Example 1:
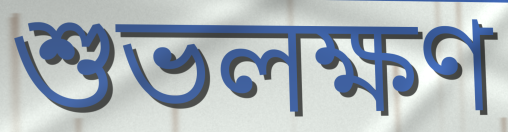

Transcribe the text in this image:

শুভলক্ষণ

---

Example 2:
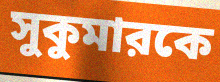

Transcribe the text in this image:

সুকুমারকে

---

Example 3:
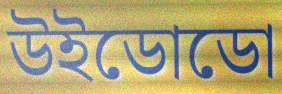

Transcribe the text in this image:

উইডোডো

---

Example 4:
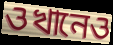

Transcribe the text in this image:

ওখানেও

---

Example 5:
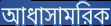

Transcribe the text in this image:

আধাসামরিক